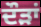
ਦੌੜਾਂ